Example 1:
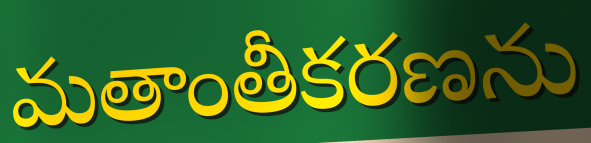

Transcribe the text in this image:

మతాంతీకరణను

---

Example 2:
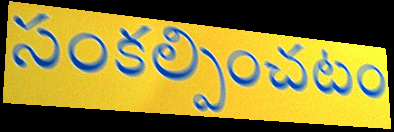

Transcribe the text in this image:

సంకల్పించటం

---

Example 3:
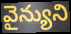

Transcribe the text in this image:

వైన్యుని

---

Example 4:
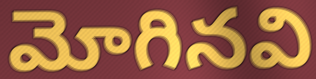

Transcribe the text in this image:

మోగినవి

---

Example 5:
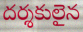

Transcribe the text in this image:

దర్శకులైన